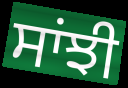
ਸਾਂਝੀ